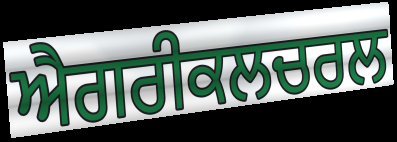
ਐਗਰੀਕਲਚਰਲ